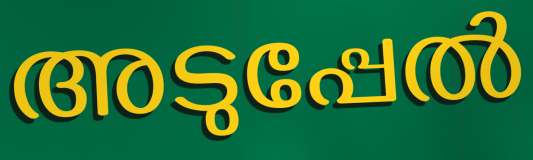
അടുപ്പേൽ